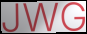
JWG